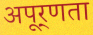
अपूर्णता